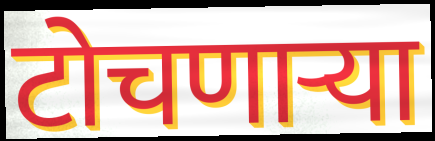
टोचणाऱ्या